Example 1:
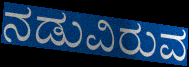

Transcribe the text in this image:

ನಡುವಿರುವ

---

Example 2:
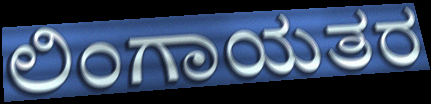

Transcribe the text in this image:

ಲಿಂಗಾಯತರ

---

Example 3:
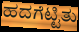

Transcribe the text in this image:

ಹದಗೆಟ್ಟಿತು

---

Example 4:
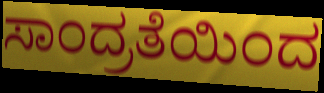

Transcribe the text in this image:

ಸಾಂದ್ರತೆಯಿಂದ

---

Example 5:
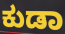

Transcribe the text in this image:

ಕುಡಾ